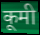
कूमी